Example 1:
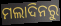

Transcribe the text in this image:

ମଲାଦିନରୁ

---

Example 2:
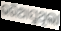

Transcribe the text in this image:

ଭରିଆସୁଥିଲା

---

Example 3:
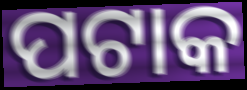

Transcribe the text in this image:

ପଟାକ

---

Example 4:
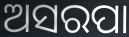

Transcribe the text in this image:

ଅସରପା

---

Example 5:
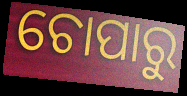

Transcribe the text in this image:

ଚୋପାରୁ